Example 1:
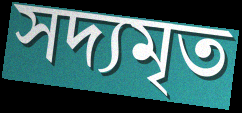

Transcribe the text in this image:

সদ্যমৃত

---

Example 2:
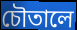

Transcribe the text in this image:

চৌতালে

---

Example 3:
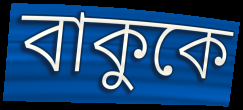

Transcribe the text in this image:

বাকুকে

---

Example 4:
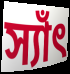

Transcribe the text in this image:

স্যাঁৎ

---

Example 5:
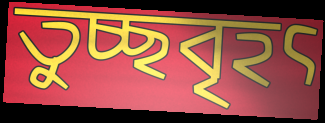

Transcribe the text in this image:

তুচ্ছবৃহৎ